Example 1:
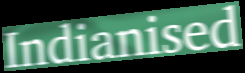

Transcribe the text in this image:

Indianised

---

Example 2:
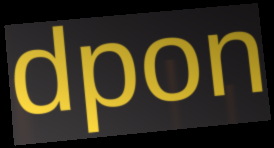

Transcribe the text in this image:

dpon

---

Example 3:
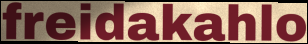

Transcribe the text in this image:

freidakahlo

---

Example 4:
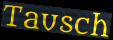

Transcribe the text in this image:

Tausch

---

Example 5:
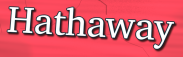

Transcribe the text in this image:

Hathaway